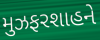
મુઝફરશાહને